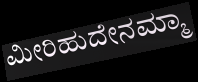
ಮೀರಿಹುದೇನಮ್ಮಾ